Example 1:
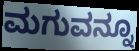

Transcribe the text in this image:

ಮಗುವನ್ನೂ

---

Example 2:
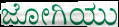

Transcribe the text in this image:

ಜೋಗಿಯು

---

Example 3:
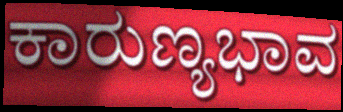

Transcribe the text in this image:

ಕಾರುಣ್ಯಭಾವ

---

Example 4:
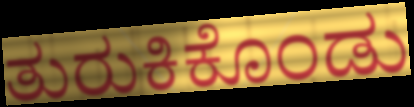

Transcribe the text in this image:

ತುರುಕಿಕೊಂಡು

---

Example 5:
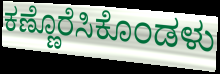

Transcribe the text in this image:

ಕಣ್ಣೊರೆಸಿಕೊಂಡಳು